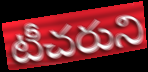
టీచరుని